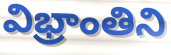
విభ్రాంతిని